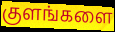
குளங்களை